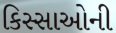
કિસ્સાઓની